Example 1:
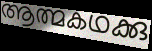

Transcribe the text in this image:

ആത്മകഥക്കു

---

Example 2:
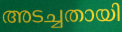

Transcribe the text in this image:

അടച്ചതായി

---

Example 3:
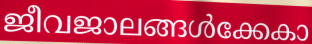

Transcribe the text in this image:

ജീവജാലങ്ങൾക്കേകാ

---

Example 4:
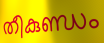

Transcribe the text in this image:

തീകുണ്ഡം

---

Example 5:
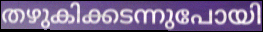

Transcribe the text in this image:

തഴുകിക്കടന്നുപോയി